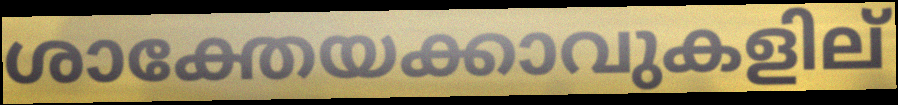
ശാക്തേയക്കാവുകളില്